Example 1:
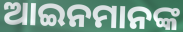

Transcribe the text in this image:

ଆଇନମାନଙ୍କ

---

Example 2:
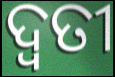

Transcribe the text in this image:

ଦ୍ଵତୀ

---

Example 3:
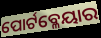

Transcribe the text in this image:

ପୋର୍ଟବ୍ଳେୟାର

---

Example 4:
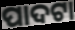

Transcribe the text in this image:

ପାଦଟା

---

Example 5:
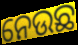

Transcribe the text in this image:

ନେଉଛ